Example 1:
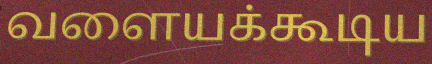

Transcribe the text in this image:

வளையக்கூடிய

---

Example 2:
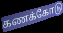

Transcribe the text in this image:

கணக்கோடு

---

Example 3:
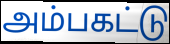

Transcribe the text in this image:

அம்பகட்டு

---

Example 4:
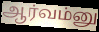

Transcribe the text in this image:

ஆர்வம்னு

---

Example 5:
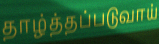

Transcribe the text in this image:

தாழ்த்தப்படுவாய்